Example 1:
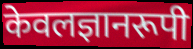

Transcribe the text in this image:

केवलज्ञानरूपी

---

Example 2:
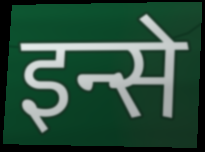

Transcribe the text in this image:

इन्से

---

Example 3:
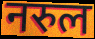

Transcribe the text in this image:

नरुल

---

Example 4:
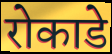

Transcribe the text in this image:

रोकाडे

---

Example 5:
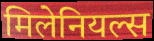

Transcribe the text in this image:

मिलेनियल्स